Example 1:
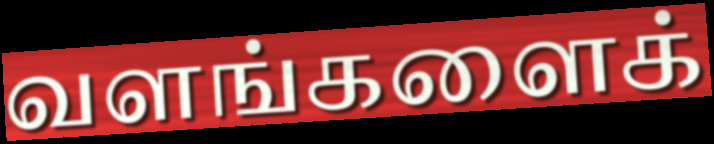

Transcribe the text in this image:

வளங்களைக்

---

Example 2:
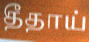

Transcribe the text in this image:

தீதாய்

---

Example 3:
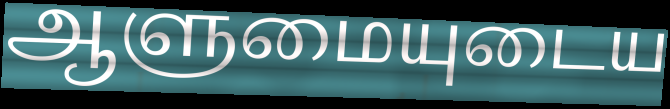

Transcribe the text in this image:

ஆளுமையுடைய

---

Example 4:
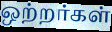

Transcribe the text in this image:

ஒற்றர்கள்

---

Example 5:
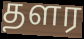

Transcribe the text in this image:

தளர